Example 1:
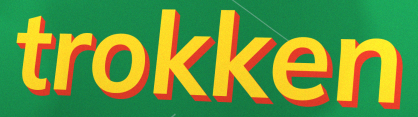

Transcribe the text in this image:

trokken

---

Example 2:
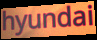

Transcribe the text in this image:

hyundai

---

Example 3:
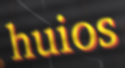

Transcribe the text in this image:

huios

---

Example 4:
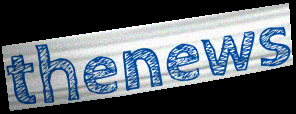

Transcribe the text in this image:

thenews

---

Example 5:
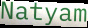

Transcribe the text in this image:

Natyam